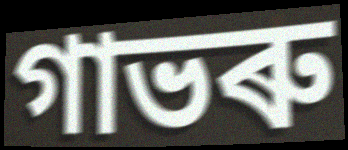
গাভৰু